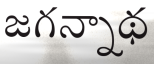
జగన్నాథ